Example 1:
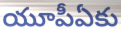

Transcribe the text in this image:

యూపీఏకు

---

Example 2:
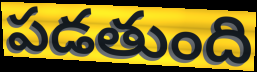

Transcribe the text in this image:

పడతుంది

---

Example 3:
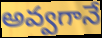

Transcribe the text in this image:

అవ్వగానే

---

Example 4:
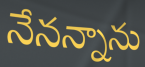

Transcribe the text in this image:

నేనన్నాను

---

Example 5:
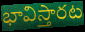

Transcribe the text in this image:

భావిస్తారట